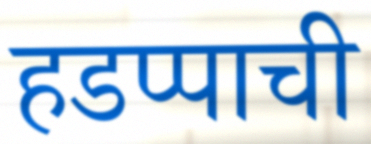
हडप्पाची